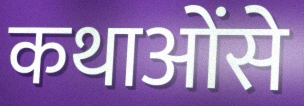
कथाओंसे